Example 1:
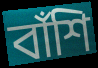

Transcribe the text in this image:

বাঁশি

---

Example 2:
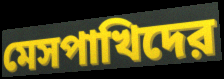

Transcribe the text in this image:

মেসপাখিদের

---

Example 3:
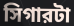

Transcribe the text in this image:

সিগারটা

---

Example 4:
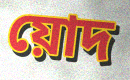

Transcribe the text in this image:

য়োদ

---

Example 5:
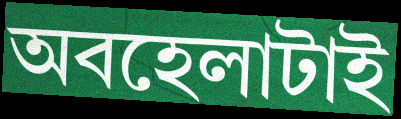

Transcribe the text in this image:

অবহেলাটাই